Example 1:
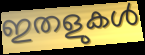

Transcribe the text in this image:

ഇതളുകൾ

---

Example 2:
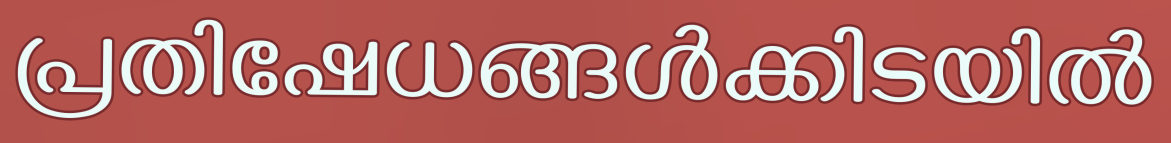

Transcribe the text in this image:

പ്രതിഷേധങ്ങൾക്കിടയിൽ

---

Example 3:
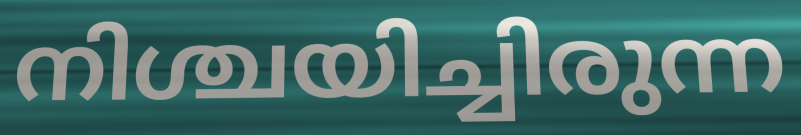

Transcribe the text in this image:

നിശ്ചയിച്ചിരുന്ന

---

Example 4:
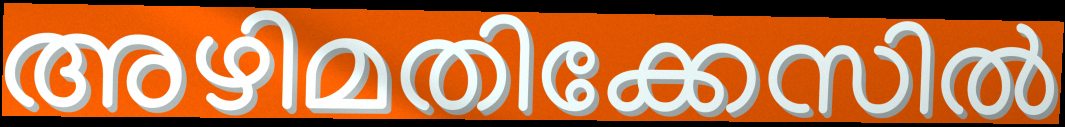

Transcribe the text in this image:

അഴിമതിക്കേസിൽ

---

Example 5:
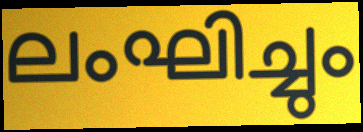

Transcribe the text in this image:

ലംഘിച്ചും